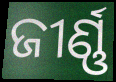
ଜୀର୍ଣ୍ଣ